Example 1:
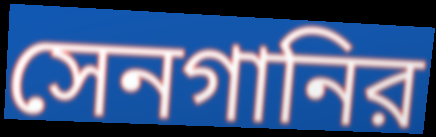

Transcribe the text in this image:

সেনগানির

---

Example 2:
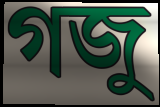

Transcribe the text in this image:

গজু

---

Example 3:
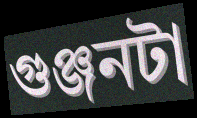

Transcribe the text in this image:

গুঞ্জনটা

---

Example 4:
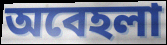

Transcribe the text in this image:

অবেহলা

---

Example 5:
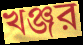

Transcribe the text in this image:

খঞ্জর